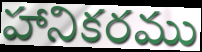
హానికరము